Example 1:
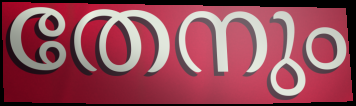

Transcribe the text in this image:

തേനും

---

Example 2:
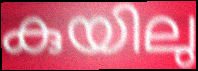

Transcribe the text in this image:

കുയിലു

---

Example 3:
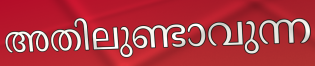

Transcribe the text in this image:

അതിലുണ്ടാവുന്ന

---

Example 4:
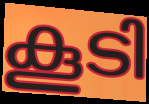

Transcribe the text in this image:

കൂടി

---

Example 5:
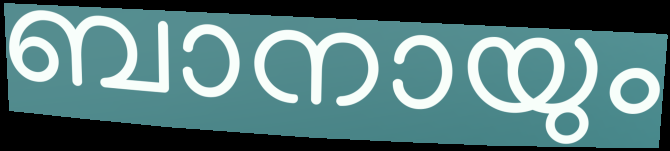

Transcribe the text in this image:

ബാനായും